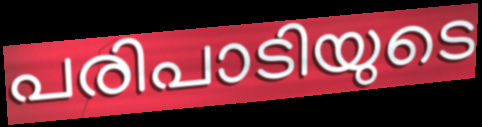
പരിപാടിയുടെ